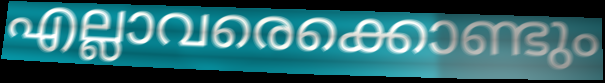
എല്ലാവരെക്കൊണ്ടും